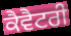
ਕੈਵੈਟਰੀ